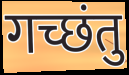
गच्छंतु